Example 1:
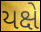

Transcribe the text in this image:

યક્ષે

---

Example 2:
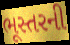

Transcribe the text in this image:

ભૂસ્તરની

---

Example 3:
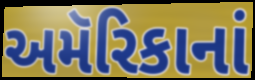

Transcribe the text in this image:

અમૅરિકાનાં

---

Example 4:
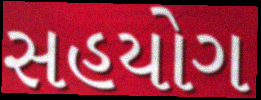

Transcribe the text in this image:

સહયોગ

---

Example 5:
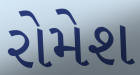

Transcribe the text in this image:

રોમેશ